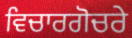
ਵਿਚਾਰਗੋਚਰੇ